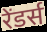
रेंडर्स